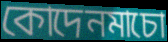
কোদেনমাচো